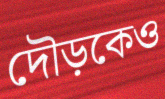
দৌড়কেও